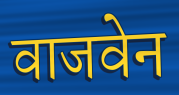
वाजवेन